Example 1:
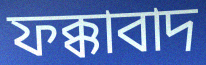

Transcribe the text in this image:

ফক্কাবাদ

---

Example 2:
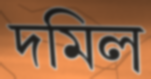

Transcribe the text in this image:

দমিল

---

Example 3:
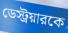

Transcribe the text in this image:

ডেস্ট্রয়ারকে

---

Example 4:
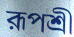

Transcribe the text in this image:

রূপশ্রী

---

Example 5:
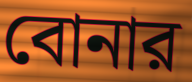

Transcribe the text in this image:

বোনার